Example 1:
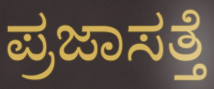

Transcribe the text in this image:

ಪ್ರಜಾಸತ್ತೆ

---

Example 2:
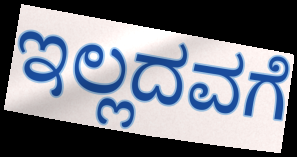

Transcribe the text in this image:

ಇಲ್ಲದವಗೆ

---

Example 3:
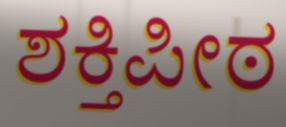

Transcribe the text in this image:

ಶಕ್ತಿಪೀಠ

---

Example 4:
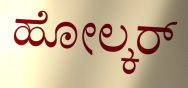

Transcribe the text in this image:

ಹೋಲ್ಕರ್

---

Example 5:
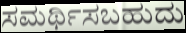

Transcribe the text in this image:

ಸಮರ್ಥಿಸಬಹುದು